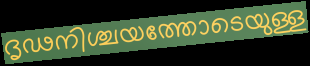
ദൃഢനിശ്ചയത്തോടെയുള്ള